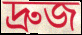
দ্রুজ